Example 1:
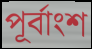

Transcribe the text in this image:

পূৰ্বাংশ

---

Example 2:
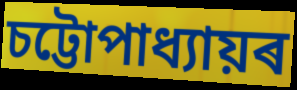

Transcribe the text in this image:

চট্টোপাধ্যায়ৰ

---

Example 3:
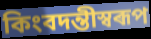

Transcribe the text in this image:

কিংবদন্তীস্বৰূপ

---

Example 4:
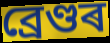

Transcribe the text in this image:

ব্ৰেণ্ডৰ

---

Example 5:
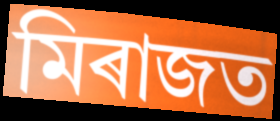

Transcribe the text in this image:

মিৰাজত